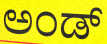
ಅಂಡ್